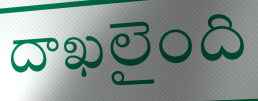
దాఖలైంది